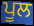
ਪੂਲ